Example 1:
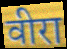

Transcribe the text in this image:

वीरा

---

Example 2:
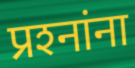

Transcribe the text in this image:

प्रश्‍नांना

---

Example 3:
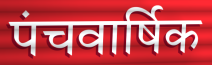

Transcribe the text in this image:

पंचवार्षिक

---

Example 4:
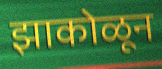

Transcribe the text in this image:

झाकोळून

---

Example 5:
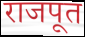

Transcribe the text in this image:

राजपूत